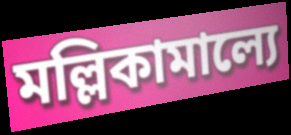
মল্লিকামাল্যে